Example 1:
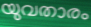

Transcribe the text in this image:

യുവതാരം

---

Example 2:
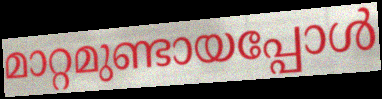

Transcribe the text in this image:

മാറ്റമുണ്ടായപ്പോൾ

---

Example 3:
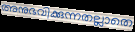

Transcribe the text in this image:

അനുഭവിക്കുന്നതല്ലാതെ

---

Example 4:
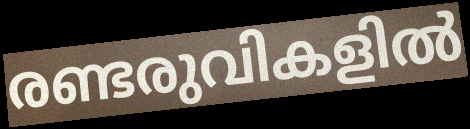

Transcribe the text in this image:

രണ്ടരുവികളിൽ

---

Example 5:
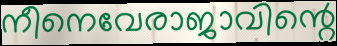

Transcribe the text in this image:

നീനെവേരാജാവിന്റെ